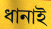
ধানাই